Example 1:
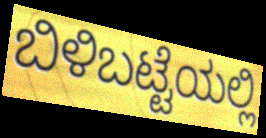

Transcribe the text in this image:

ಬಿಳಿಬಟ್ಟೆಯಲ್ಲಿ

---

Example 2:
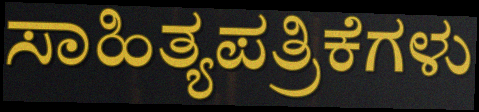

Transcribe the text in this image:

ಸಾಹಿತ್ಯಪತ್ರಿಕೆಗಳು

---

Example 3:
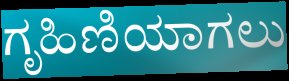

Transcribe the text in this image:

ಗೃಹಿಣಿಯಾಗಲು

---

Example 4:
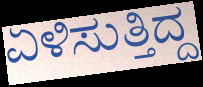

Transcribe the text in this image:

ಏಳಿಸುತ್ತಿದ್ದ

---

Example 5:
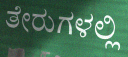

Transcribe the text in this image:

ತೇರುಗಳಲ್ಲಿ